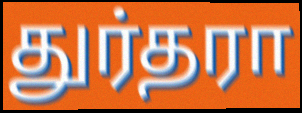
துர்தரா